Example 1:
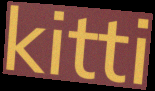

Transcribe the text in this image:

kitti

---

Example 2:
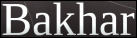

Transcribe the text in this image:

Bakhar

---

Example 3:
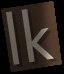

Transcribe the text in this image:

lk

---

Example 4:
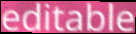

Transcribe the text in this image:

editable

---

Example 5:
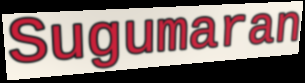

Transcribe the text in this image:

Sugumaran